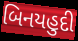
બિનયહુદી